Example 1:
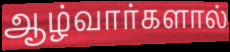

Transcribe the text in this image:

ஆழ்வார்களால்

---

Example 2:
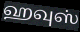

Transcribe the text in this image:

ஹவுஸ்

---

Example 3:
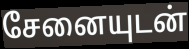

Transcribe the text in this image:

சேனையுடன்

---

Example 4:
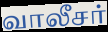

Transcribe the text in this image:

வாலீசர்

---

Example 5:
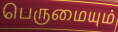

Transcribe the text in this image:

பெருமையும்